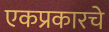
एकप्रकारचे